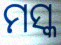
ମସ୍କ